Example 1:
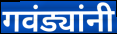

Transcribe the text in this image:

गवंड्यांनी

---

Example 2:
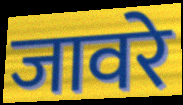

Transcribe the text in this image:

जावरे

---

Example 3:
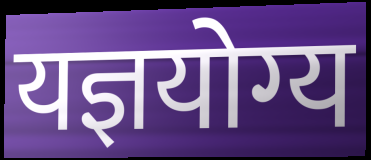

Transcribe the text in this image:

यज्ञयोग्य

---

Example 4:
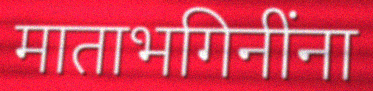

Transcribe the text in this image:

माताभगिनींना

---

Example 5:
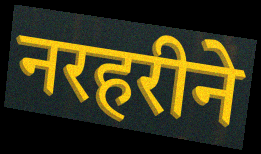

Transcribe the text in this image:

नरहरीने